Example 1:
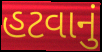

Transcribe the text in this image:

હટવાનું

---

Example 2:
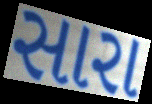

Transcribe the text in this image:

સારા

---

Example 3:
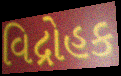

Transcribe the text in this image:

વિદ્રોહક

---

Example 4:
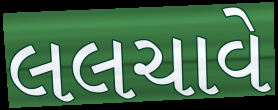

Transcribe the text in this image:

લલચાવે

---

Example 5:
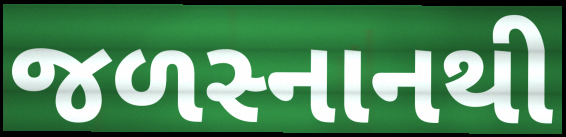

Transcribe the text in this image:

જળસ્નાનથી